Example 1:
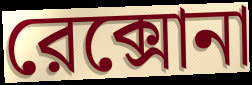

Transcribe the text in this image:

রেক্সোনা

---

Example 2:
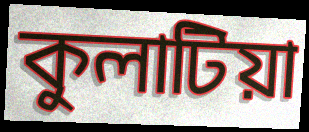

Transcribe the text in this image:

কুলাটিয়া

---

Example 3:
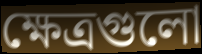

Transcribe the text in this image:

ক্ষেত্রগুলো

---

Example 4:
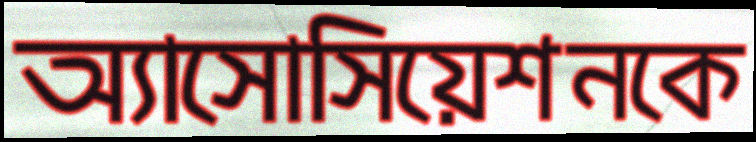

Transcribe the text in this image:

অ্যাসোসিয়েশনকে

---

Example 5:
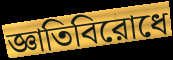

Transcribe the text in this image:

জ্ঞাতিবিরোধে